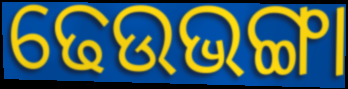
ଢେଉଭଙ୍ଗା